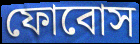
ফোবোস